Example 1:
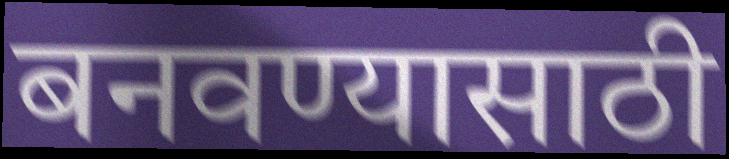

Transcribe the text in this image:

बनवण्यासाठी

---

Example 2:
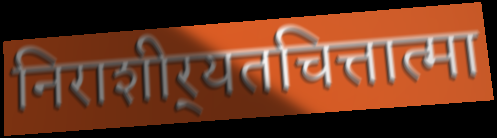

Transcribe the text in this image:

निराशीर्यतचित्तात्मा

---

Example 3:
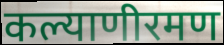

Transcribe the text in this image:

कल्याणीरमण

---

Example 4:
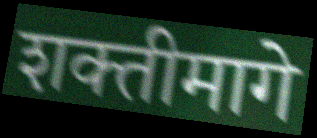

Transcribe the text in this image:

शक्तीमागे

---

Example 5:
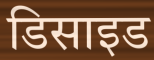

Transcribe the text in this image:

डिसाइड